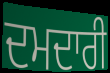
ਦਮਦਾਰੀ